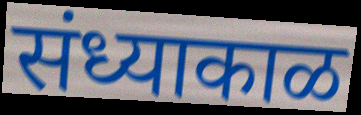
संध्याकाळ